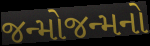
જન્મોજન્મનો